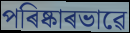
পৰিষ্কাৰভাৱে